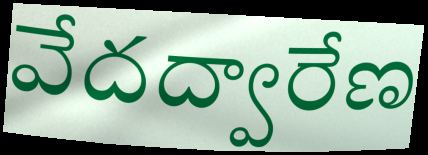
వేదద్వారేణ